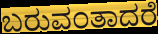
ಬರುವಂತಾದರೆ